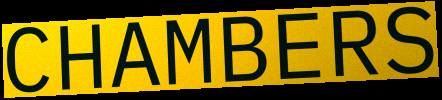
CHAMBERS